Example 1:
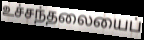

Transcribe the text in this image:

உச்சந்தலையைப்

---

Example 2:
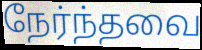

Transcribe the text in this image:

நேர்ந்தவை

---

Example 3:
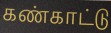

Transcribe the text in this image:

கண்காட்டு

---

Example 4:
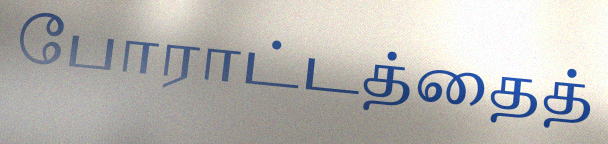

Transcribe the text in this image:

போராட்டத்தைத்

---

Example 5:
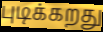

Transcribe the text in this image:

புடிக்கறது